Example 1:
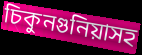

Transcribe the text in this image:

চিকুনগুনিয়াসহ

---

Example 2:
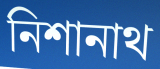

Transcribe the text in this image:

নিশানাথ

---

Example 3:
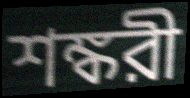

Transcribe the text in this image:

শঙ্করী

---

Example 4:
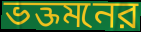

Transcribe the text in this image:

ভক্তমনের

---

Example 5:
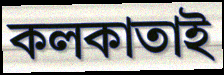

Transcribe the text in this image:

কলকাতাই